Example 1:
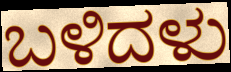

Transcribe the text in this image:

ಬಳಿದಳು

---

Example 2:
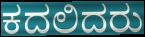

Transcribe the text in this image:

ಕದಲಿದರು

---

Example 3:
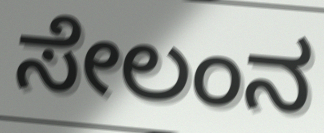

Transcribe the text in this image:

ಸೇಲಂನ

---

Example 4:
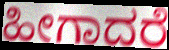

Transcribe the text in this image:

ಹೀಗಾದರೆ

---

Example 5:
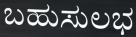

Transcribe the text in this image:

ಬಹುಸುಲಭ